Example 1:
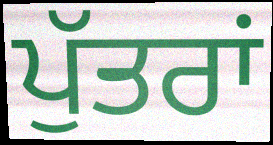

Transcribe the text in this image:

ਪੁੱਤਰਾਂ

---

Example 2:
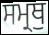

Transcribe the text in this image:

ਸਮ੍ਰਥੁ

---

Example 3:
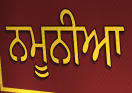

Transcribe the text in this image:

ਨਮੂਨੀਆ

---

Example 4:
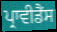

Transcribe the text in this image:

ਪ੍ਰਾਵੀਡੈਂਸ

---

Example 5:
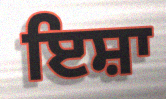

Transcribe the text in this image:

ਇਸ਼ਾ